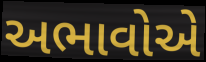
અભાવોએ